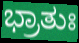
ಭ್ರಾತುಃ